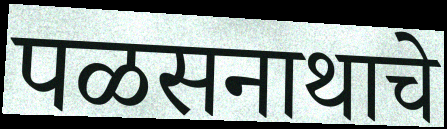
पळसनाथाचे